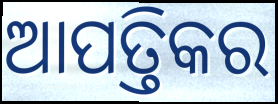
ଆପତ୍ତିକର